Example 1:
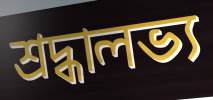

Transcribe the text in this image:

শ্রদ্ধালভ্য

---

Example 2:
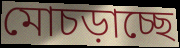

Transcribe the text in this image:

মোচড়াচ্ছে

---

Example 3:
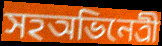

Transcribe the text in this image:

সহঅভিনেত্রী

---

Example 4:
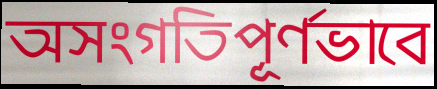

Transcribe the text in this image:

অসংগতিপূর্ণভাবে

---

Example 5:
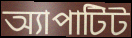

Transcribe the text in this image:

অ্যাপাটিট